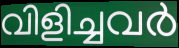
വിളിച്ചവർ